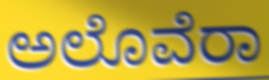
ಅಲೊವೆರಾ